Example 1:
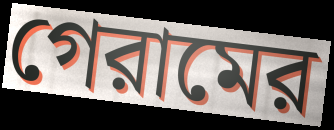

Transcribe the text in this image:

গেরামের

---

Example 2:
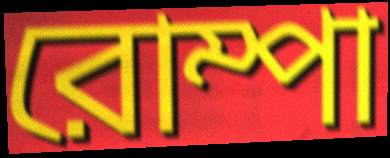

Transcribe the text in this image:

রোম্পা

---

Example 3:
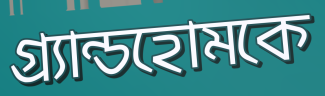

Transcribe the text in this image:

গ্র্যান্ডহোমকে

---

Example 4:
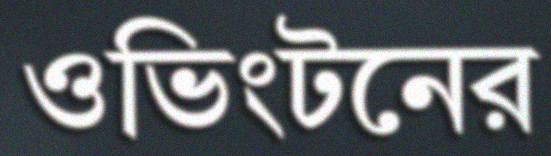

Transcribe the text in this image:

ওভিংটনের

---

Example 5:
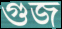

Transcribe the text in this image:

গুজ